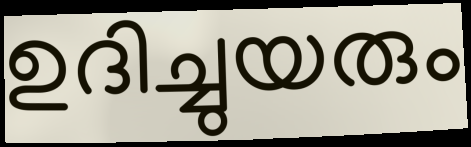
ഉദിച്ചുയരും